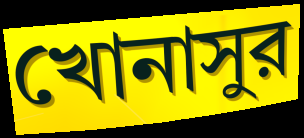
খোনাসুর